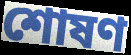
শোষণ